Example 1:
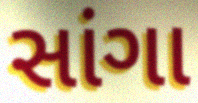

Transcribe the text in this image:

સાંગા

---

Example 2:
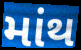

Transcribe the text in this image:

માંથ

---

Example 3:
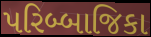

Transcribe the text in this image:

પરિબ્બાજિકા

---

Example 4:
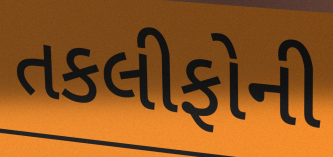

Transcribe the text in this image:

તકલીફોની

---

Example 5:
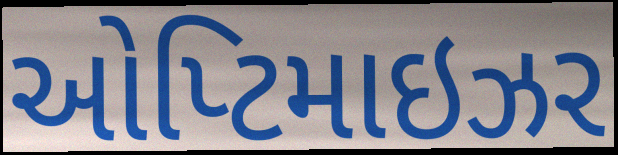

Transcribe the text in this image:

ઓપ્ટિમાઇઝર